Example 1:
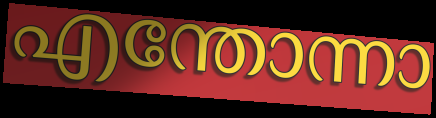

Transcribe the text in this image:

എന്തോന്നാ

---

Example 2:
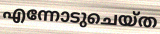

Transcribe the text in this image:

എന്നോടുചെയ്ത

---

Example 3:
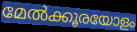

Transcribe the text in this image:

മേൽക്കൂരയോളം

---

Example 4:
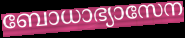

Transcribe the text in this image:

ബോധാഭ്യാസേന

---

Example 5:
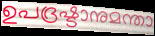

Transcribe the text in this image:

ഉപദ്രഷ്ടാനുമന്താ